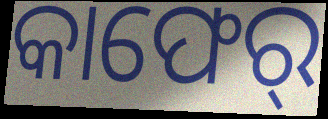
କାଫେର୍